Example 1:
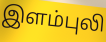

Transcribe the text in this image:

இளம்புலி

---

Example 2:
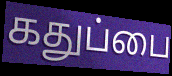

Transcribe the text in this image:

கதுப்பை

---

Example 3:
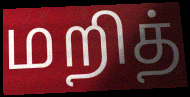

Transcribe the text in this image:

மறித்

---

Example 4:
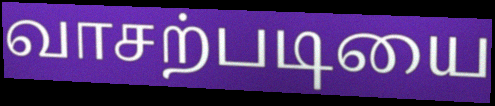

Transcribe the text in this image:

வாசற்படியை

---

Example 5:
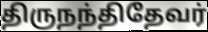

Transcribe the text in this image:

திருநந்திதேவர்